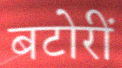
बटोरीं